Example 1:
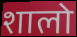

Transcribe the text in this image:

शालो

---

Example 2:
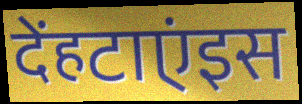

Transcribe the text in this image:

देंहटाएंइस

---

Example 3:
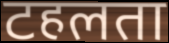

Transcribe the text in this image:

टहलता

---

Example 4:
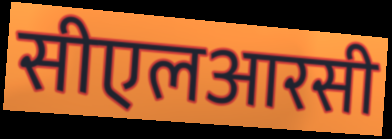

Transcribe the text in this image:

सीएलआरसी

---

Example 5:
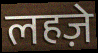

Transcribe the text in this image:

लहज़े